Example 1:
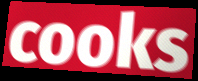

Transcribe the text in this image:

cooks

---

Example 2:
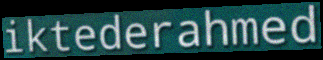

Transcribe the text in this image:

iktederahmed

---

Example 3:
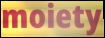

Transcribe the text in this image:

moiety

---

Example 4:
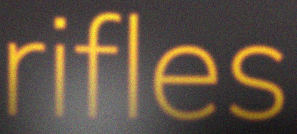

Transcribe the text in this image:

rifles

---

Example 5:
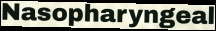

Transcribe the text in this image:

Nasopharyngeal